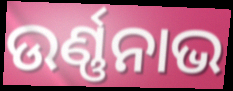
ଉର୍ଣ୍ଣନାଭ